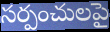
సర్పంచులపై